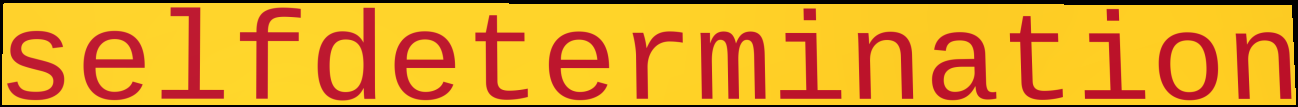
selfdetermination